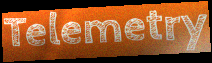
Telemetry